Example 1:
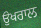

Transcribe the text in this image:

ਉਖਰਾਲ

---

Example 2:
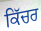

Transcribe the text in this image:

ਕਿੱਚਰ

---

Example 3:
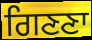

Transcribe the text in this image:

ਗਿਣਣਾ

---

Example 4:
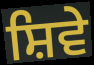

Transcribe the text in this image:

ਸ਼ਿਵੇ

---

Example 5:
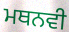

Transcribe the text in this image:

ਮਥਨਵੀ